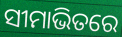
ସୀମାଭିତରେ